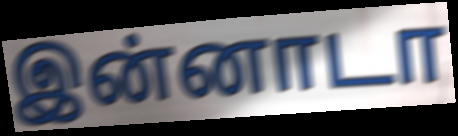
இன்னாடா